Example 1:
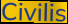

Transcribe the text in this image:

Civilis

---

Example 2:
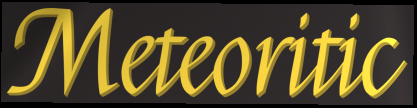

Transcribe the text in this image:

Meteoritic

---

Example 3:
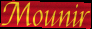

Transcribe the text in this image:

Mounir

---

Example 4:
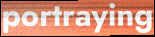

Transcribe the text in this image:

portraying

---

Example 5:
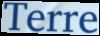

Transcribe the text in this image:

Terre